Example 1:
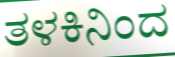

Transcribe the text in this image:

ತಳಕಿನಿಂದ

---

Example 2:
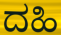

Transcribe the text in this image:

ದಹಿ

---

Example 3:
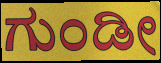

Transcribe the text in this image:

ಗುಂಡೀ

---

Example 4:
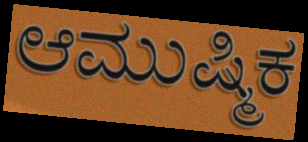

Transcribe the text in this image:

ಆಮುಷ್ಮಿಕ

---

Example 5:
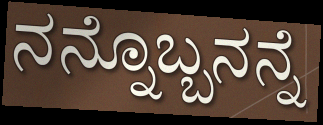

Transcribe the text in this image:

ನನ್ನೊಬ್ಬನನ್ನೆ